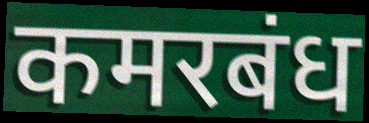
कमरबंध